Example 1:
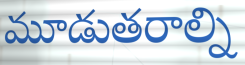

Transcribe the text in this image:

మూడుతరాల్ని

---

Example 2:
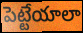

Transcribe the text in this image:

పెట్టేయాలా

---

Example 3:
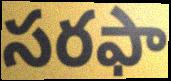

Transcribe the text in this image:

సరఫా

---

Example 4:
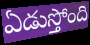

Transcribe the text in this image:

ఏడుస్తోంది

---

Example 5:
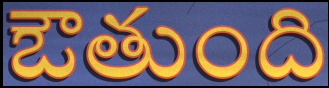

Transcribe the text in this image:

ఔతుంది